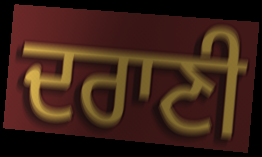
ਦਰਾਣੀ